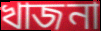
খাজনা